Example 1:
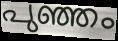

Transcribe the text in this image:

പുഞ്ഞം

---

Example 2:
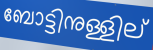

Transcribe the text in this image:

ബോട്ടിനുള്ളില്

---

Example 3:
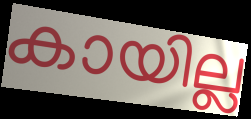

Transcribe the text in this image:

കായില്ല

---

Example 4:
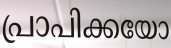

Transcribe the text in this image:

പ്രാപിക്കയോ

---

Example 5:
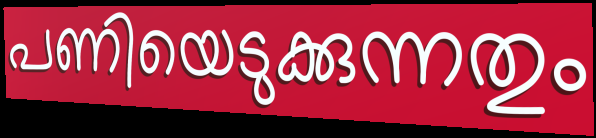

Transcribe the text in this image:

പണിയെടുക്കുന്നതും